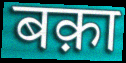
बक़ा